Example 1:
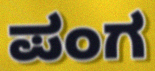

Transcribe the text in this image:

ಪಂಗ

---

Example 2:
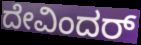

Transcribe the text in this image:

ದೇವಿಂದರ್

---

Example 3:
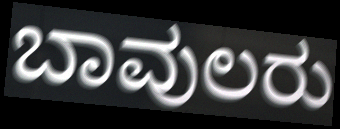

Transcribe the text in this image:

ಬಾವುಲರು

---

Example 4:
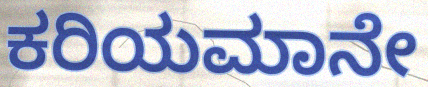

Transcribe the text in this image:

ಕರಿಯಮಾನೇ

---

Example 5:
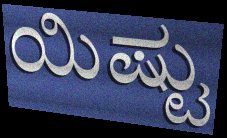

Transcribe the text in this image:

ಯಿಷ್ಟು